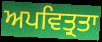
ਅਪਵਿਤ੍ਰਤਾ